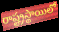
రాష్ట్రస్థాయిలో